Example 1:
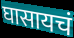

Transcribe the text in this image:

घासायचं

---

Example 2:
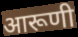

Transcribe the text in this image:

आरूणी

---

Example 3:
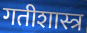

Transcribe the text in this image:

गतीशास्त्र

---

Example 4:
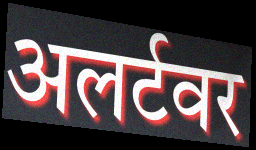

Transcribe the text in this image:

अलर्टवर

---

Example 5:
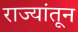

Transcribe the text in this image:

राज्यांतून